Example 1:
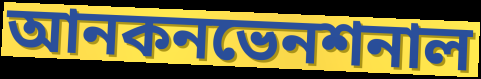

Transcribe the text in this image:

আনকনভেনশনাল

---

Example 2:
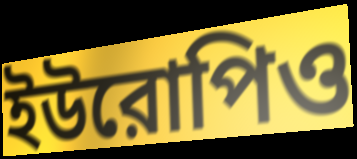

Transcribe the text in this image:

ইউরোপিও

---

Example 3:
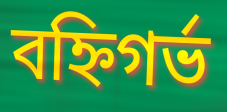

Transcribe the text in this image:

বহ্নিগর্ভ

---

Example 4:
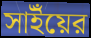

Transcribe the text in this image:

সাইঁয়ের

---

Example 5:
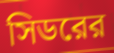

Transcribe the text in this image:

সিডরের